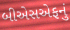
બીએસએફનું